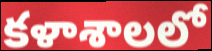
కళాశాలలో